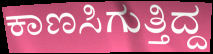
ಕಾಣಸಿಗುತ್ತಿದ್ದ